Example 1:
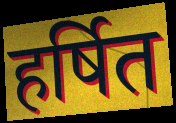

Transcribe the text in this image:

हर्षित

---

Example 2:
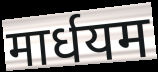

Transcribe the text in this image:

मार्धयम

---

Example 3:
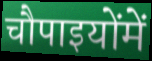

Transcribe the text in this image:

चौपाइयोंमें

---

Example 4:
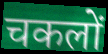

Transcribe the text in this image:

चकलों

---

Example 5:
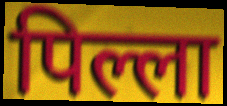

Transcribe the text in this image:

पिल्ला